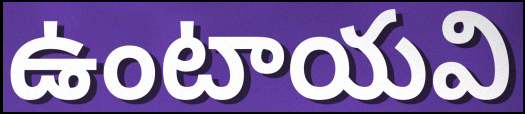
ఉంటాయవి